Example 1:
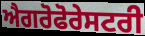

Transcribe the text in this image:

ਐਗਰੋਫੋਰੇਸਟਰੀ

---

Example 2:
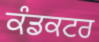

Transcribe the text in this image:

ਕੰਡਕਟਰ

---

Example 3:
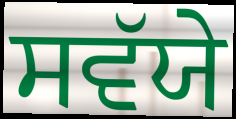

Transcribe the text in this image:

ਸਵੱਯੇ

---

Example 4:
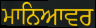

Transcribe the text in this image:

ਮਾਨਿਆਵਰ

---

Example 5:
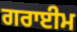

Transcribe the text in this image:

ਗਰਾਈਮ